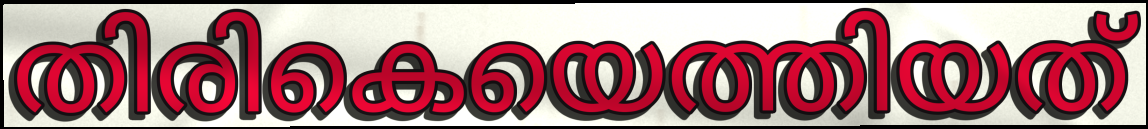
തിരികെയെത്തിയത്